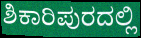
ಶಿಕಾರಿಪುರದಲ್ಲಿ